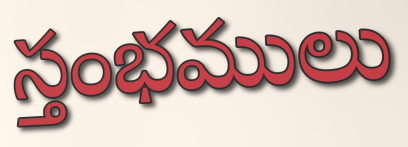
స్తంభములు